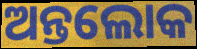
ଅନ୍ତଲୋକ